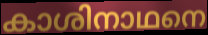
കാശിനാഥനെ